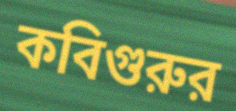
কবিগুরুর